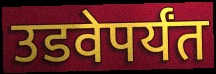
उडवेपर्यंत